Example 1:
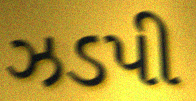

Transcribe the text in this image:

ઝડપી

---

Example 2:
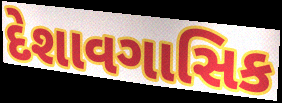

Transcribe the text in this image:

દેશાવગાસિક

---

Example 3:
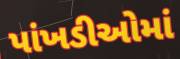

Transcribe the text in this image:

પાંખડીઓમાં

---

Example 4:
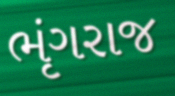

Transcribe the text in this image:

ભૃંગરાજ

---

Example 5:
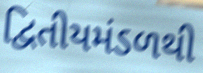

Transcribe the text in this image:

દ્વિતીયમંડળથી